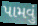
પામવું